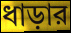
ধাড়ার